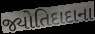
જ્યોતિદાદાના